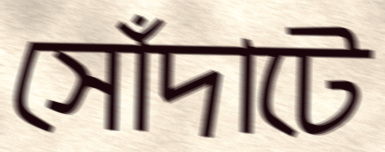
সোঁদাটে